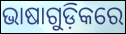
ଭାଷାଗୁଡ଼ିକରେ